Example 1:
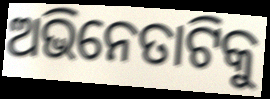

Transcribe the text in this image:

ଅଭିନେତାଟିକୁ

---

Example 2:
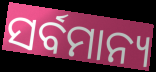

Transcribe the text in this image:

ସର୍ବମାନ୍ୟ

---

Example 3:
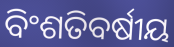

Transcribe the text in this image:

ବିଂଶତିବର୍ଷୀୟ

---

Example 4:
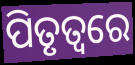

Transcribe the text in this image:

ପିତୃତ୍ୱରେ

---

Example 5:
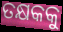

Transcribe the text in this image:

ତକ୍ଷକକୁ